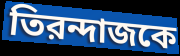
তিরন্দাজকে